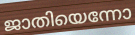
ജാതിയെന്നോ